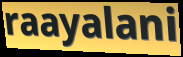
raayalani